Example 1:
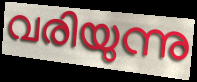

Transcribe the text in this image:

വരിയുന്നു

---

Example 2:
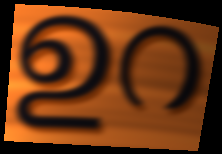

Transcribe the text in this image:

ഉറ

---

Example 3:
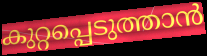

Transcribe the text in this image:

കുറ്റപ്പെടുത്താൻ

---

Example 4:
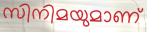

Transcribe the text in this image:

സിനിമയുമാണ്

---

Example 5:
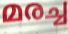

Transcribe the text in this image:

മരച്ച